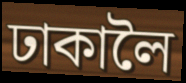
ঢাকালৈ